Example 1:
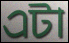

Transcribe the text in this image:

এটা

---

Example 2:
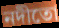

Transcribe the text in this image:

নদীতো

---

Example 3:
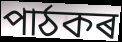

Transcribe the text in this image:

পাঠকৰ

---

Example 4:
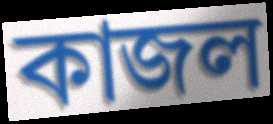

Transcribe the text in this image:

কাজল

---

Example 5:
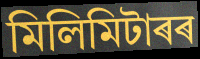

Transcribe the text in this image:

মিলিমিটাৰৰ